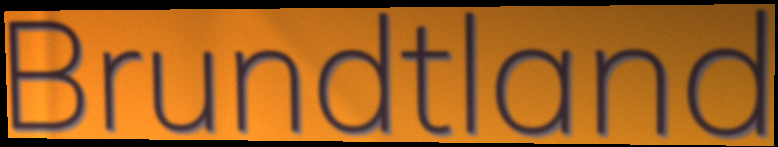
Brundtland